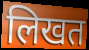
लिखत